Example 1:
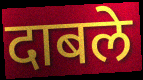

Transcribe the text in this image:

दाबले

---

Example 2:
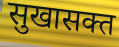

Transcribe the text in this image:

सुखासक्त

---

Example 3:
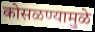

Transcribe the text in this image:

कोसळण्यामुळे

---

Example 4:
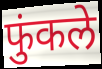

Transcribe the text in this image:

फुंकले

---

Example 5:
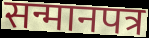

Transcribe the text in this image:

सन्मानपत्र